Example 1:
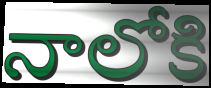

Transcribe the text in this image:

నాలోకి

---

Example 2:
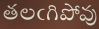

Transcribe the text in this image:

తలఁగిపోవు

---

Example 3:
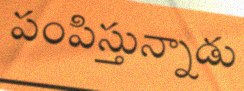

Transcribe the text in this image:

పంపిస్తున్నాడు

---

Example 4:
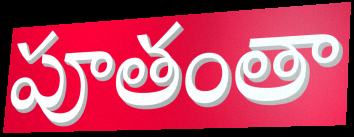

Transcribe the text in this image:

పూతంతా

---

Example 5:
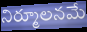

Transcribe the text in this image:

నిర్మూలనమే